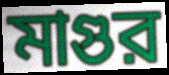
মাগুর